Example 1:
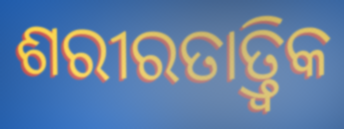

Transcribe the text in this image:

ଶରୀରତାତ୍ତ୍ଵିକ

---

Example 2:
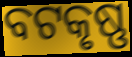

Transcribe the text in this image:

ବଟକୃଷ୍ଣ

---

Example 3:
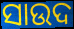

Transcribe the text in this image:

ସାଉଦ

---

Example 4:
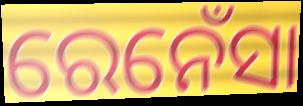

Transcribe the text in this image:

ରେନେଁସା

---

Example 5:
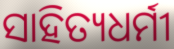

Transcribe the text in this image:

ସାହିତ୍ୟଧର୍ମୀ